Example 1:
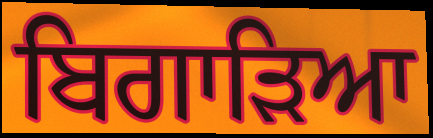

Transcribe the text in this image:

ਬਿਗਾੜਿਆ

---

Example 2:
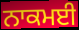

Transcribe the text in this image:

ਨਾਕਮਈ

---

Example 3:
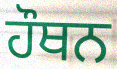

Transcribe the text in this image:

ਹੌਥਨ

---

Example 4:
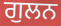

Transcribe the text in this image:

ਗੁਲਨ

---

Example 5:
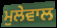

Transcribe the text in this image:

ਮੁਲੇਵਾਲ